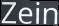
Zein